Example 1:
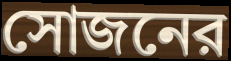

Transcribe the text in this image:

সোজনের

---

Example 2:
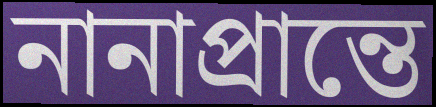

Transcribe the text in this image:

নানাপ্রান্তে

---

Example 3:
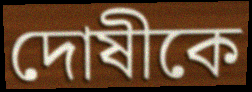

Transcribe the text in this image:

দোষীকে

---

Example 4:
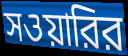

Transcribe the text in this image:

সওয়ারির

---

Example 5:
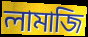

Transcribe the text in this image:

লামাজি